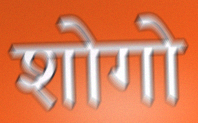
शोगो